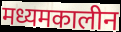
मध्यमकालीन